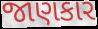
જાણકાર